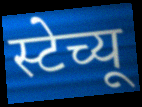
स्टेच्यू